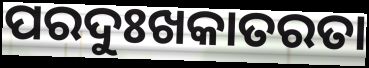
ପରଦୁଃଖକାତରତା